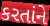
કરતાંને